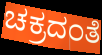
ಚಕ್ರದಂತೆ